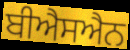
ਬੀਐਸਐਨ